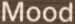
Mood